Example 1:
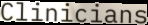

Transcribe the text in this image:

Clinicians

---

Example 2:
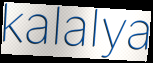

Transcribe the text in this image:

kalalya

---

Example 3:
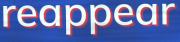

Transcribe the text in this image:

reappear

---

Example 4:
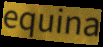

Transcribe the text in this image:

equina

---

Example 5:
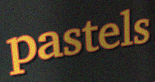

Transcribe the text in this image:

pastels